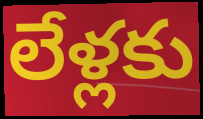
లేళ్లకు